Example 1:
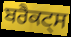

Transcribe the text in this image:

ਬਰੈਕਟ੍ਸ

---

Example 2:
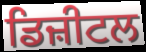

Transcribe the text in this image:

ਡਿਜ਼ੀਟਲ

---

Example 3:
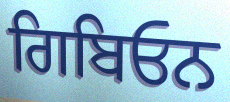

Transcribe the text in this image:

ਗਿਬਿਓਨ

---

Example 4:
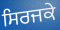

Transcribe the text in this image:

ਸਿਰਜਕੇ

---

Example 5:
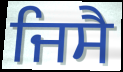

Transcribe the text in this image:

ਜਿਸੈ